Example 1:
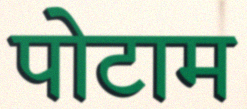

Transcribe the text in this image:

पोटाम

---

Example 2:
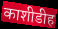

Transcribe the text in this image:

काशीडीह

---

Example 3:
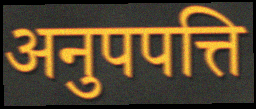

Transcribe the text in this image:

अनुपपत्ति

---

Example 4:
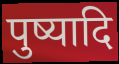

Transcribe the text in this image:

पुष्यादि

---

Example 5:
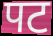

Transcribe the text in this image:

पट